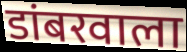
डांबरवाला